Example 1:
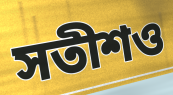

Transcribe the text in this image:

সতীশও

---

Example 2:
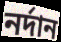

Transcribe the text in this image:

নর্দান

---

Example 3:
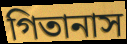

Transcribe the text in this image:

গিতানাস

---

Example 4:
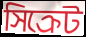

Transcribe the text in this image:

সিক্রেট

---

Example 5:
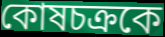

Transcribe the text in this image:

কোষচক্রকে